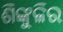
ଶିଙ୍କୁଳିର